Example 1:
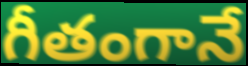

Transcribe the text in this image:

గీతంగానే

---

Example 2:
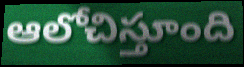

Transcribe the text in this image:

ఆలోచిస్తూంది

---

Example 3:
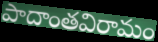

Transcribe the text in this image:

పాదాంతవిరామం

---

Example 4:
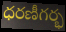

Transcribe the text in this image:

ధరణీగర్భ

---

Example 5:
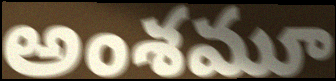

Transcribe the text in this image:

అంశమూ